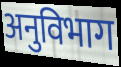
अनुविभाग